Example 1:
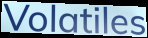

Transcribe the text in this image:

Volatiles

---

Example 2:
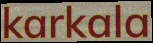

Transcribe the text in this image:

karkala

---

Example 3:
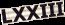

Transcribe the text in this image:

LXXIII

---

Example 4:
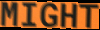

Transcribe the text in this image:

MIGHT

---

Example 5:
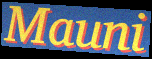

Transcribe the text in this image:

Mauni